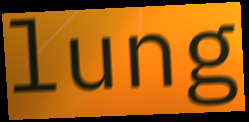
lung